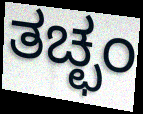
ತಚ್ಛಂ